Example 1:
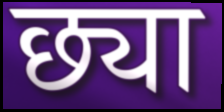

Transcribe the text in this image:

छ्या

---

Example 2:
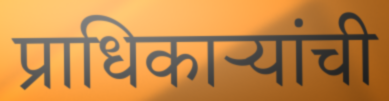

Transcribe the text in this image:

प्राधिकाऱ्यांची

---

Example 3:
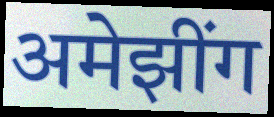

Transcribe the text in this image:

अमेझींग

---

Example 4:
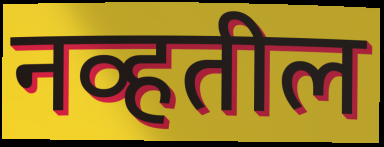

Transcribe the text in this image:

नव्हतील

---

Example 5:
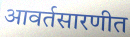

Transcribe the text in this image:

आवर्तसारणीत